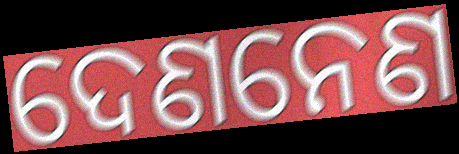
ଦେଣନେଣ